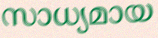
സാധ്യമായ